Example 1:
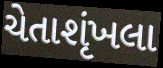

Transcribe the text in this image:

ચેતાશૃંખલા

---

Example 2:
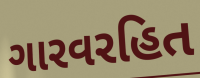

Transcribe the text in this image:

ગારવરહિત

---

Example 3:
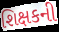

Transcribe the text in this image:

શિક્ષકની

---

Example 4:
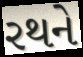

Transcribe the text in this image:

રથને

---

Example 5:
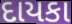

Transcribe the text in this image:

દાયકા